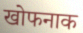
खोफनाक